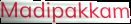
Madipakkam